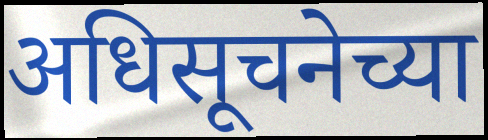
अधिसूचनेच्या